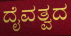
ದೈವತ್ವದ